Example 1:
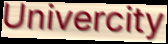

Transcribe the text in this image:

Univercity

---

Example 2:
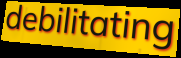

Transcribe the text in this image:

debilitating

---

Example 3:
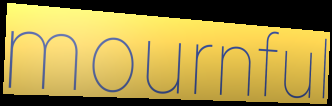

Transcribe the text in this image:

mournful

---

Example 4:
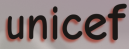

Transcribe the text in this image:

unicef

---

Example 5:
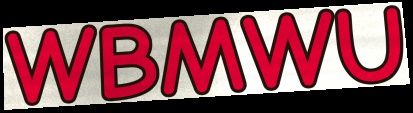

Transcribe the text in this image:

WBMWU